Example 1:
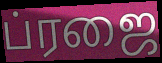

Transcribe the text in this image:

ப்ரஜை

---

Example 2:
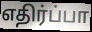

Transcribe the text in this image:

எதிர்ப்பா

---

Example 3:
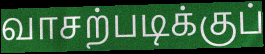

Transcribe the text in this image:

வாசற்படிக்குப்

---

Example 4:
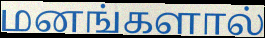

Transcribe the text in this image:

மனங்களால்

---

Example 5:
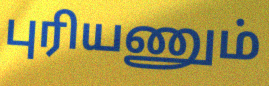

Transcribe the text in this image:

புரியணும்